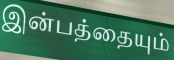
இன்பத்தையும்